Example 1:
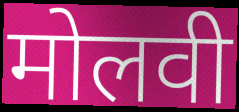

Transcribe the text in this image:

मोलवी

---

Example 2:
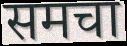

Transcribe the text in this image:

समचा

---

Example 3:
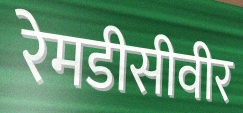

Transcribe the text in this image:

रेमडीसीवीर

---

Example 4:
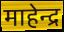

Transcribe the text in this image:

माहेन्द्र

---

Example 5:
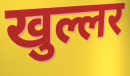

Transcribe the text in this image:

खुल्लर